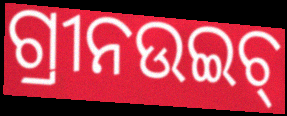
ଗ୍ରୀନଉଇଚ୍